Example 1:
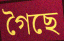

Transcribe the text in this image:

গৈছে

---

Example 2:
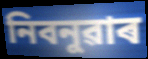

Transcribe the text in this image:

নিবনুৱাৰ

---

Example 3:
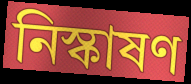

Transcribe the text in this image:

নিস্কাষণ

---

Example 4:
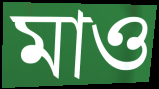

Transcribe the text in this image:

মাও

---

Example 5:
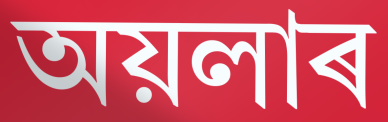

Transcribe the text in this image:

অয়লাৰ